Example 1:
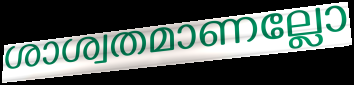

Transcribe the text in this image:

ശാശ്വതമാണല്ലോ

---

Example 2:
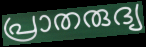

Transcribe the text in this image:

പ്രാതരുദ്യ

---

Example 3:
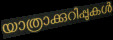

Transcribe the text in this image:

യാത്രാക്കുറിപ്പുകൾ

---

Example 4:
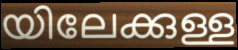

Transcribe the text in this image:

യിലേക്കുള്ള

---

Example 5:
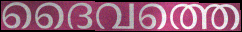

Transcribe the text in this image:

ദൈവത്തെ